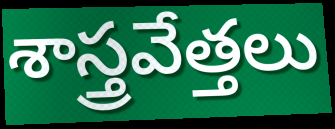
శాస్త్రవేత్తలు